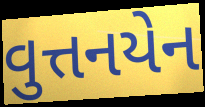
વુત્તનયેન